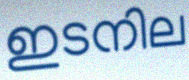
ഇടനില